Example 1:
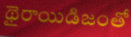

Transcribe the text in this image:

థైరాయిడిజంతో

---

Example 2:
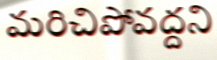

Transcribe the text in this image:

మరిచిపోవద్దని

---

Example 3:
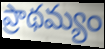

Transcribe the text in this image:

ప్రాథమ్యం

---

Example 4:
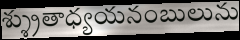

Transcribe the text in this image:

శ్శ్రుతాధ్యయనంబులును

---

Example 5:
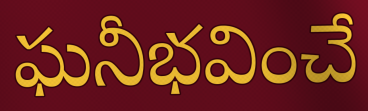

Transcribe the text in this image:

ఘనీభవించే